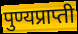
पुण्यप्राप्ती